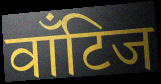
वाँटिज